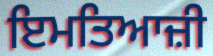
ਇਮਤਿਆਜ਼ੀ